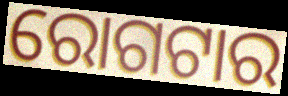
ରୋଗଟାର